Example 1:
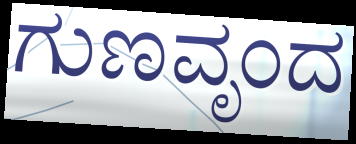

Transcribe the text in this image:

ಗುಣವೃಂದ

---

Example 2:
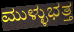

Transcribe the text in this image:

ಮುಳ್ಳುಭತ್ತ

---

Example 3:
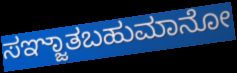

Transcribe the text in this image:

ಸಞ್ಜಾತಬಹುಮಾನೋ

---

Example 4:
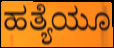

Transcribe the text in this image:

ಹತ್ಯೆಯೂ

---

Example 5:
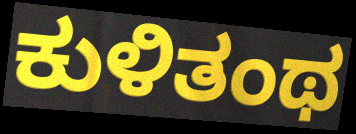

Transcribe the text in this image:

ಕುಳಿತಂಥ